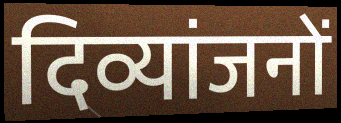
दिव्यांजनों